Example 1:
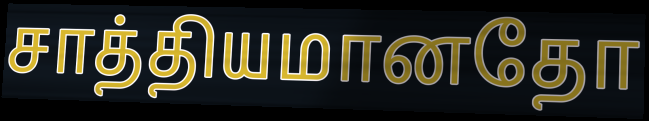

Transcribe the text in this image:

சாத்தியமானதோ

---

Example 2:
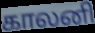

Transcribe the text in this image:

காலனி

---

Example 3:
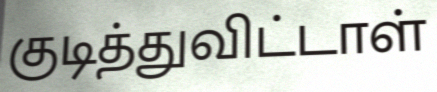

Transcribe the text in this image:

குடித்துவிட்டாள்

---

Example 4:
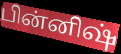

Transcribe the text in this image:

பின்னிஷ்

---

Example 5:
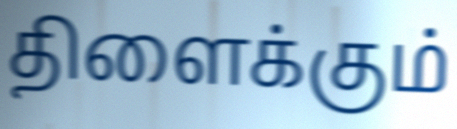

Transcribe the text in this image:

திளைக்கும்